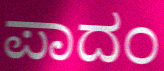
ಪಾದಂ